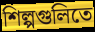
শিল্পগুলিতে